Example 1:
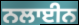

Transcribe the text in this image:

ਨਲਾਈਨ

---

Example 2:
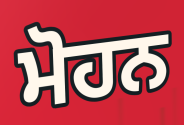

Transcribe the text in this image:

ਮੋਹਨ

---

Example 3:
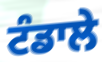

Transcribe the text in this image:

ਟੰਡਾਲੇ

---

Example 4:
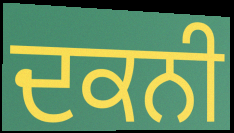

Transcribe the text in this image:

ਦਕਨੀ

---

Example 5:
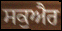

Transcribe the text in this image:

ਸਕੁਐਰ